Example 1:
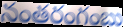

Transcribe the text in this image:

నంతరంగంబు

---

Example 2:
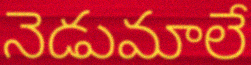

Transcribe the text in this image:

నెడుమాలే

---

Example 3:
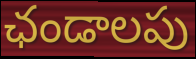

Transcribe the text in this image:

ఛండాలపు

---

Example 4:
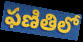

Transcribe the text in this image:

ఫణితిలో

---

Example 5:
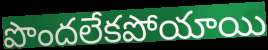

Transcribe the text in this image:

పొందలేకపోయాయి